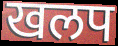
खलप